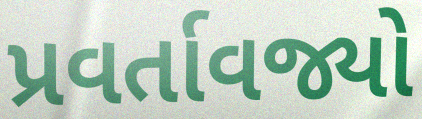
પ્રવર્તાવજ્યો